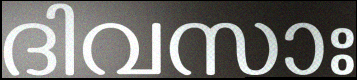
ദിവസാഃ